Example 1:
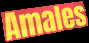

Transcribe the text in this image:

Amales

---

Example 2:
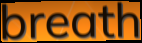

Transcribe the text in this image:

breath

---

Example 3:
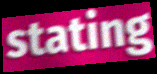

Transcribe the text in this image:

stating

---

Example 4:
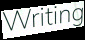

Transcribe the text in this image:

Writing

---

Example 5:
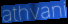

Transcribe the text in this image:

athvani